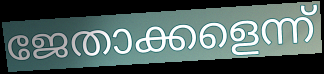
ജേതാക്കളെന്ന്